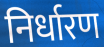
निर्धारण